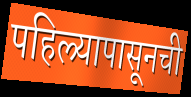
पहिल्यापासूनची